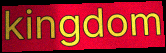
kingdom